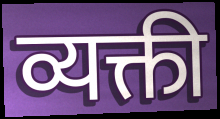
व्यक्ती